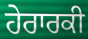
ਹੇਰਾਰਕੀ